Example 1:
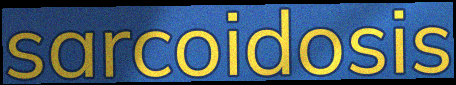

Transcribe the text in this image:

sarcoidosis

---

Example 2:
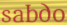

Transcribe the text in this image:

sabdo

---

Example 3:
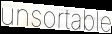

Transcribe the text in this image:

unsortable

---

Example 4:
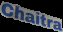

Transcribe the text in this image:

Chaitra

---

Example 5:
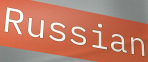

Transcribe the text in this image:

Russian